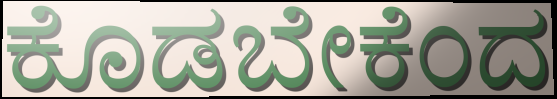
ಕೊಡಬೇಕೆಂದ